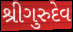
શ્રીગુરુદેવ